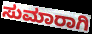
ಸುಮಾರಾಗಿ